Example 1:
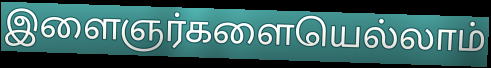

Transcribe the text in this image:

இளைஞர்களையெல்லாம்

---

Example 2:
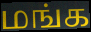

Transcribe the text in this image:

மங்க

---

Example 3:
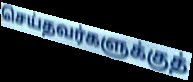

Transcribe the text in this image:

செய்தவர்களுக்குத்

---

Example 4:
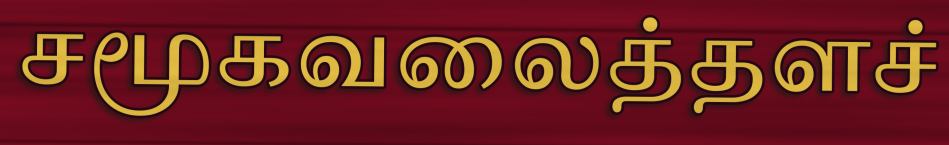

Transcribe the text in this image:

சமூகவலைத்தளச்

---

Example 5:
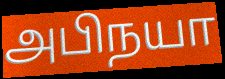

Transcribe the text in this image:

அபிநயா